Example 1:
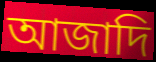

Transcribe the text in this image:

আজাদি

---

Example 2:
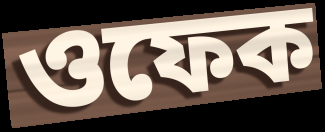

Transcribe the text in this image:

ওফেক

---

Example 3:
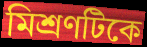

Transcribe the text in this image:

মিশ্রণটিকে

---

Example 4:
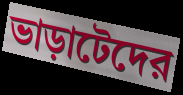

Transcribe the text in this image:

ভাড়াটেদের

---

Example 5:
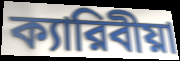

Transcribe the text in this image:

ক্যারিবীয়া